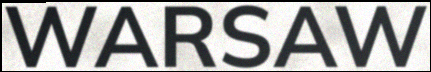
WARSAW